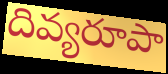
దివ్యరూపా